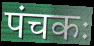
पंचकः